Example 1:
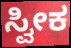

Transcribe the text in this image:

ಸ್ವೀಕ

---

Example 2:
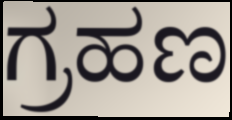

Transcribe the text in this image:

ಗ್ರಹಣ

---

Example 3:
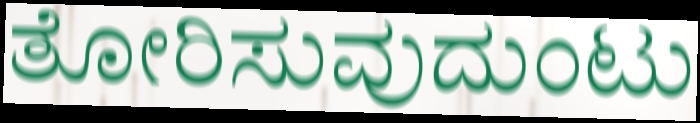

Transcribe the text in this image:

ತೋರಿಸುವುದುಂಟು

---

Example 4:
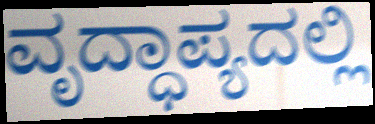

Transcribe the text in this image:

ವೃದ್ಧಾಪ್ಯದಲ್ಲಿ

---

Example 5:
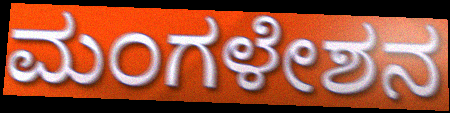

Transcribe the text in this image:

ಮಂಗಳೇಶನ